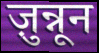
ज़ुन्नून